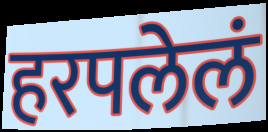
हरपलेलं